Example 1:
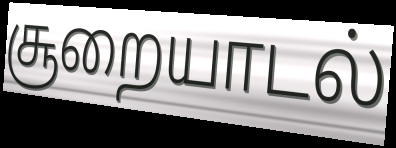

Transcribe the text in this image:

சூறையாடல்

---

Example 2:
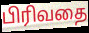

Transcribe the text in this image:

பிரிவதை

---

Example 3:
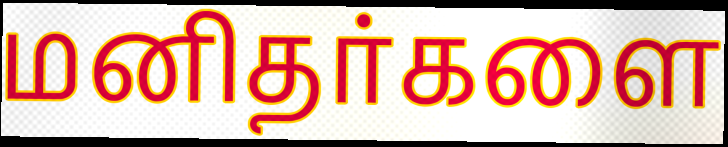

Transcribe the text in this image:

மனிதர்களை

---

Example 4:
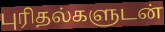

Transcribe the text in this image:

புரிதல்களுடன்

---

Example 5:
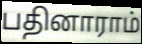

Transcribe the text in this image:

பதினாராம்